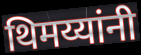
थिमय्यांनी